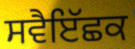
ਸਵੈਇੱਛਕ